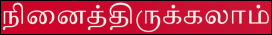
நினைத்திருக்கலாம்